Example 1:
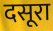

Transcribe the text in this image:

दसूरा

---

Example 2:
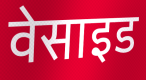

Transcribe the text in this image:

वेसाइड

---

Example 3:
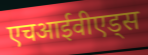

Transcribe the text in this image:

एचआईवीएड्स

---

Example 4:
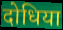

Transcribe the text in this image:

दोधिया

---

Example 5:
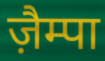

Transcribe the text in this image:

ज़ैम्पा